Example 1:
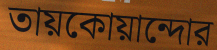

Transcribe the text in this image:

তায়কোয়ান্দোর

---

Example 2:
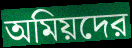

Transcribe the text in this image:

অমিয়দের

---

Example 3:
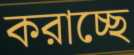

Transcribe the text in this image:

করাচ্ছে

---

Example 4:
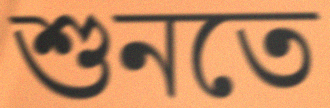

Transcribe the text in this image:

শুনতে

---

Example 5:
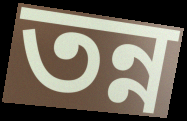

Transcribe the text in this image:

তন্ন